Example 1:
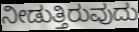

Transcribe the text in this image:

ನೀಡುತ್ತಿರುವುದು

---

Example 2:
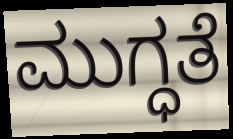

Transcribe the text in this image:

ಮುಗ್ಧತೆ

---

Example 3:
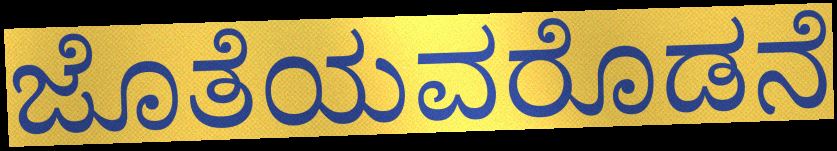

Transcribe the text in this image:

ಜೊತೆಯವರೊಡನೆ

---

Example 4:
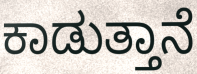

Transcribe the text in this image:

ಕಾಡುತ್ತಾನೆ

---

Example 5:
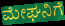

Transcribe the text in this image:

ಮೇಘನಿಗೆ